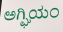
ಅಗ್ಘಿಯಂ